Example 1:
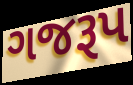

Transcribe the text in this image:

ગજરૂપ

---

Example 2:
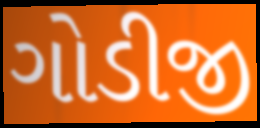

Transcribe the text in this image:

ગોડીજી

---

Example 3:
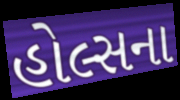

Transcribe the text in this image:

હોલ્સના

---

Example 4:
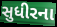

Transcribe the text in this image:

સુધીરના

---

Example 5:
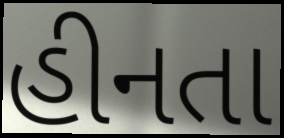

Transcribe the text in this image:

હીનતા